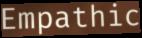
Empathic